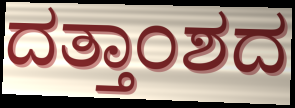
ದತ್ತಾಂಶದ